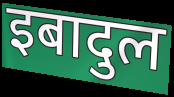
इबादुल